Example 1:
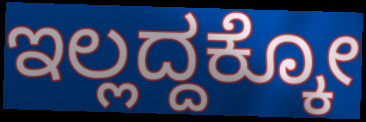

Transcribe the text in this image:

ಇಲ್ಲದ್ದಕ್ಕೋ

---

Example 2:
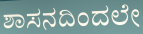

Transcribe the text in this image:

ಶಾಸನದಿಂದಲೇ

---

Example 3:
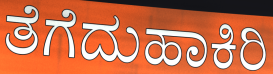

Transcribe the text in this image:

ತೆಗೆದುಹಾಕಿರಿ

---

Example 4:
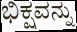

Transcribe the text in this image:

ಭಿಕ್ಷವನ್ನು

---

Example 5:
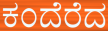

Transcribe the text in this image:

ಕಂದೆರೆದ